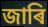
জাৰি